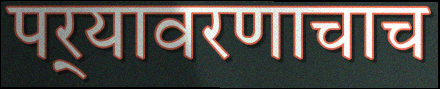
पर्यावरणाचाच